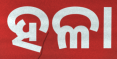
ହଳା